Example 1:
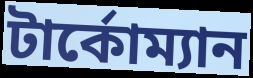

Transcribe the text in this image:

টার্কোম্যান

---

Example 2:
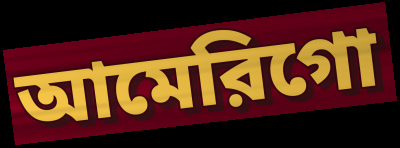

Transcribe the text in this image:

আমেরিগো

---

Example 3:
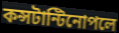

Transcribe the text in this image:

কন্সটান্টিনোপলে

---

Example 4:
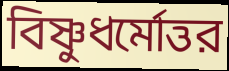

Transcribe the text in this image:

বিষ্ণুধর্মোত্তর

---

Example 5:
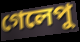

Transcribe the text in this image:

গেলেপু